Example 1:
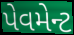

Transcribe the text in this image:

પેવમેન્ટ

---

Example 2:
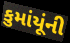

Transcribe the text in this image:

કુમાંયૂંની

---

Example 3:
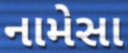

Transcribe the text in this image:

નામેસા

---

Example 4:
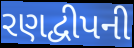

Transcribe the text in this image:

રણદ્વીપની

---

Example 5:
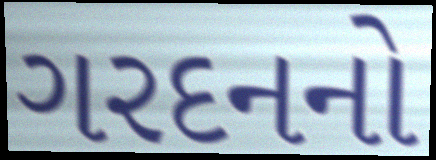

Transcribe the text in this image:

ગરદનનો